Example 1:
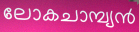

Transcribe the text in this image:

ലോകചാമ്പ്യൻ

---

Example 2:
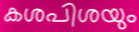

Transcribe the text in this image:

കശപിശയും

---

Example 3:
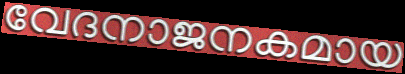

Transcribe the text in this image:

വേദനാജനകമായ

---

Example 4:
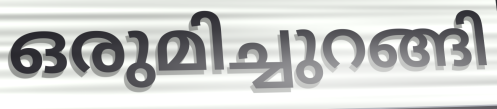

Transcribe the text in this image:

ഒരുമിച്ചുറങ്ങി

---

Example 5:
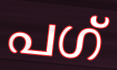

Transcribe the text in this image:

പഗ്